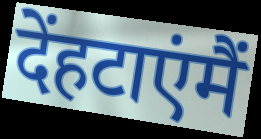
देंहटाएंमैं